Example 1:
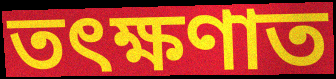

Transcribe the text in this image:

তৎক্ষণাত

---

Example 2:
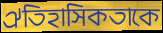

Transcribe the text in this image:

ঐতিহাসিকতাকে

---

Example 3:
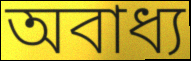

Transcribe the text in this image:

অবাধ্য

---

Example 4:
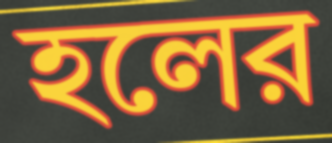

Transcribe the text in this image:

হলের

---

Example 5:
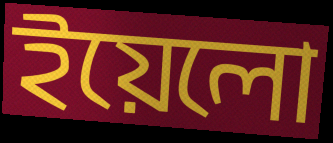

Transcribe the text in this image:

ইয়েলো